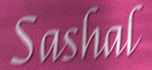
Sashal